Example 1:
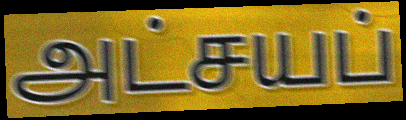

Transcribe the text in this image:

அட்சயப்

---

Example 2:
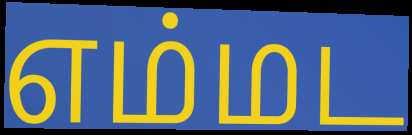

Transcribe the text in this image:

எம்மட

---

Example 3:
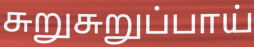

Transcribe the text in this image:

சுறுசுறுப்பாய்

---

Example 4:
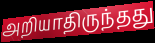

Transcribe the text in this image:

அறியாதிருந்தது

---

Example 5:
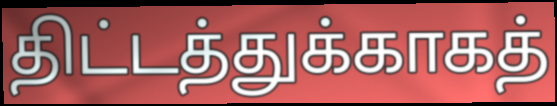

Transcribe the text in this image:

திட்டத்துக்காகத்